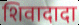
शिवादादा